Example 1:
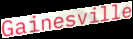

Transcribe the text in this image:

Gainesville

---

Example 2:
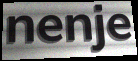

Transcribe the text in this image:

nenje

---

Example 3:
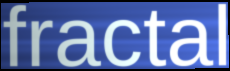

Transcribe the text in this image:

fractal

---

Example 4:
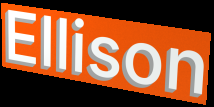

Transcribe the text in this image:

Ellison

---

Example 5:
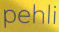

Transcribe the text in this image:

pehli